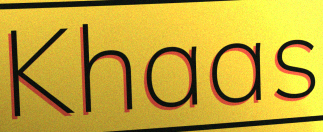
Khaas